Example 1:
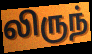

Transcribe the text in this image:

லிருந்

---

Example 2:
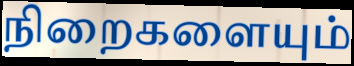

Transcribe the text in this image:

நிறைகளையும்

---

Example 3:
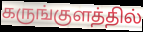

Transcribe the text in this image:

கருங்குளத்தில்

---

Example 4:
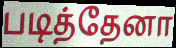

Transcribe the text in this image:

படித்தேனா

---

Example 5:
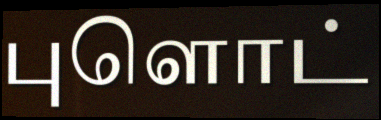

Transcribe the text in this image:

புளொட்